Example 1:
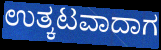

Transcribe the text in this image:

ಉತ್ಕಟವಾದಾಗ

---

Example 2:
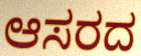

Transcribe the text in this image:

ಆಸರದ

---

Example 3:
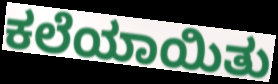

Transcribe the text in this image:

ಕಲೆಯಾಯಿತು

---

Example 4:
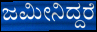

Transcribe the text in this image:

ಜಮೀನಿದ್ದರೆ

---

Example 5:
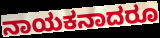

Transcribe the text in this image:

ನಾಯಕನಾದರೂ